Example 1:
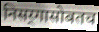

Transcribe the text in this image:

निसर्गासोबतच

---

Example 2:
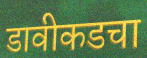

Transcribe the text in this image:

डावीकडचा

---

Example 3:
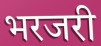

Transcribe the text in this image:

भरजरी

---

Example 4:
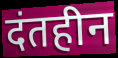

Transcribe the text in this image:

दंतहीन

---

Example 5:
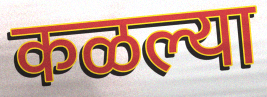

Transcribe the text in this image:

कळल्या